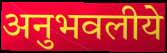
अनुभवलीये